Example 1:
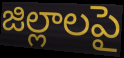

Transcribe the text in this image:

జిల్లాలపై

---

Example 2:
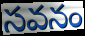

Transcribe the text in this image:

సవనం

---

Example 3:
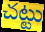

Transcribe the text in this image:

చట్టు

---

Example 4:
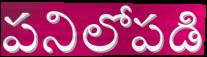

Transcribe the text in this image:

పనిలోపడి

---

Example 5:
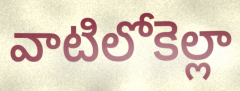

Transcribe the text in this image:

వాటిలోకెల్లా